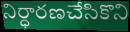
నిర్ధారణచేసికొని